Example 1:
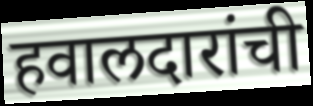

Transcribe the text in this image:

हवालदारांची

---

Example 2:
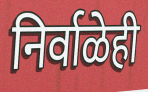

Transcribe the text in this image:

निर्वाळेही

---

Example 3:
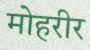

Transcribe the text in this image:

मोहरीर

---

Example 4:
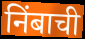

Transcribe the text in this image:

निंबाची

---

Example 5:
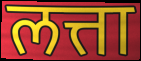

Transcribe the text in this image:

लत्ता